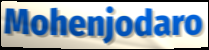
Mohenjodaro